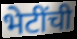
भेटींची